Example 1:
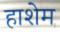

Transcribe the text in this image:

हाशेम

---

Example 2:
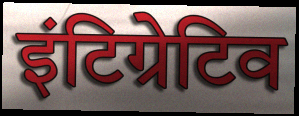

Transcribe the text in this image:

इंटिग्रेटिव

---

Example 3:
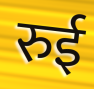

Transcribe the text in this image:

रुई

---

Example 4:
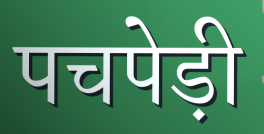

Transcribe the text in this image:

पचपेड़ी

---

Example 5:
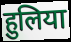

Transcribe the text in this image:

हुलिया